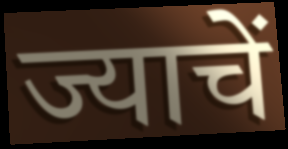
ज्याचें